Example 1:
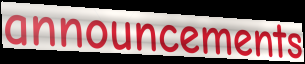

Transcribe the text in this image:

announcements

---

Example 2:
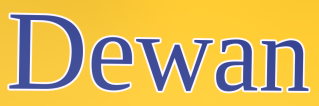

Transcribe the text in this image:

Dewan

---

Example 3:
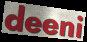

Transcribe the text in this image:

deeni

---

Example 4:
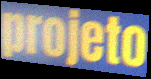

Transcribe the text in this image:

projeto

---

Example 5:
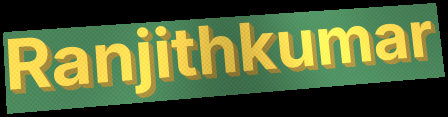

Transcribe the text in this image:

Ranjithkumar